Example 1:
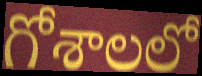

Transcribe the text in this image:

గోశాలలో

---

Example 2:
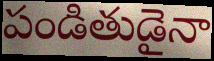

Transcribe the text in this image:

పండితుడైనా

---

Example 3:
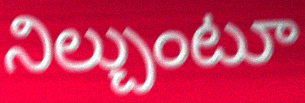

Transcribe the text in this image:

నిల్చుంటూ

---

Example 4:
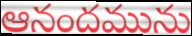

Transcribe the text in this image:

ఆనందమును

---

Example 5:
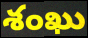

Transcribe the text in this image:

శంఖు